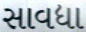
સાવદ્યા